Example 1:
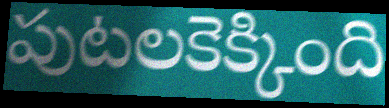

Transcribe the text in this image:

పుటలకెక్కింది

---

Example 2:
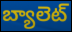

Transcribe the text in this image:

బ్యాలెట్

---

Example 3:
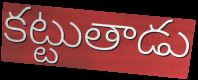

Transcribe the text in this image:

కట్టుతాడు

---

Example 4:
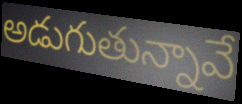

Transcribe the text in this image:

అడుగుతున్నావే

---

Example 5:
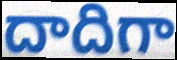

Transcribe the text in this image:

దాదిగా